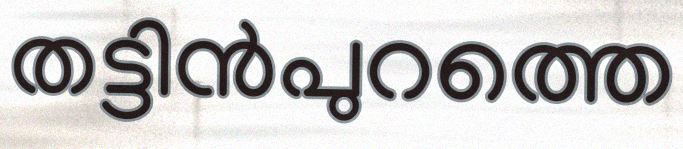
തട്ടിൻപുറത്തെ